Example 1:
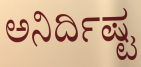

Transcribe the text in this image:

ಅನಿರ್ದಿಷ್ಟ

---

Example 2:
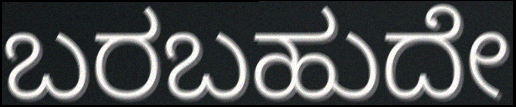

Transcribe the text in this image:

ಬರಬಹುದೇ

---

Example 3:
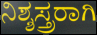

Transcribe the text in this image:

ನಿಶ್ಶಸ್ತ್ರರಾಗಿ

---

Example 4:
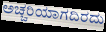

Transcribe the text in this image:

ಅಚ್ಚರಿಯಾಗದಿರದು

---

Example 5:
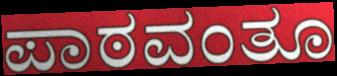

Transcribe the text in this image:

ಪಾಠವಂತೂ